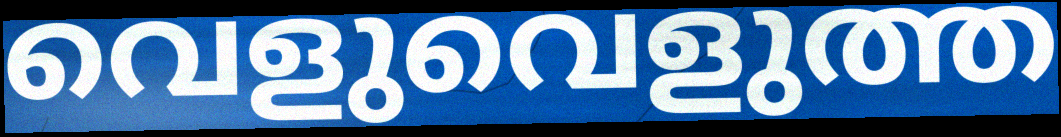
വെളുവെളുത്ത